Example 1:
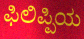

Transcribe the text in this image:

ಫಿಲಿಪ್ಪಿಯ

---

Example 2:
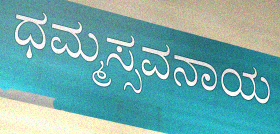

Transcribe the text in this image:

ಧಮ್ಮಸ್ಸವನಾಯ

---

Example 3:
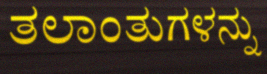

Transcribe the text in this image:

ತಲಾಂತುಗಳನ್ನು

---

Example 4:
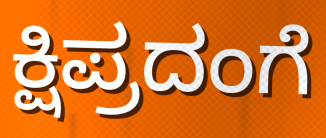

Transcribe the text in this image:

ಕ್ಷಿಪ್ರದಂಗೆ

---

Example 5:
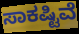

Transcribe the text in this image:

ಸಾಕಷ್ಟಿವೆ